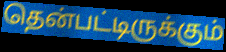
தென்பட்டிருக்கும்